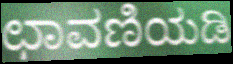
ಛಾವಣಿಯಡಿ